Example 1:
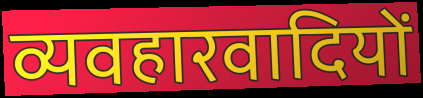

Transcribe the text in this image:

व्यवहारवादियों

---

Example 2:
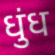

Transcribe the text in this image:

धुंध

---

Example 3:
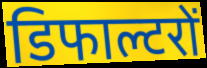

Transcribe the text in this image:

डिफाल्टरों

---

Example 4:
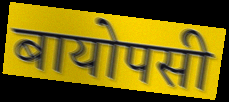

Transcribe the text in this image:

बायोपसी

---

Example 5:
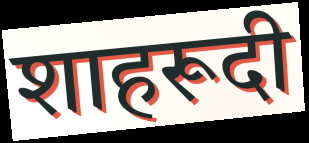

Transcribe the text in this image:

शाहरूदी